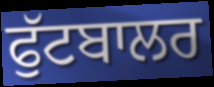
ਫੁੱਟਬਾਲਰ